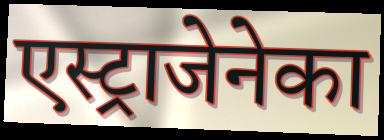
एस्ट्राजेनेका